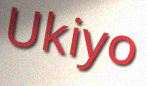
Ukiyo